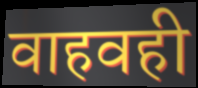
वाहवही